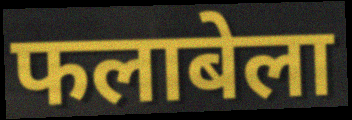
फलाबेला